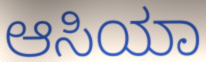
ಆಸಿಯಾ